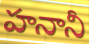
హనానీ